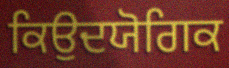
ਕਿਉਦਯੋਗਿਕ